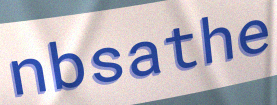
nbsathe